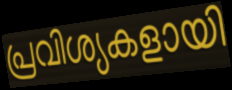
പ്രവിശ്യകളായി